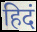
हिदं